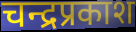
चन्द्रप्रकाश